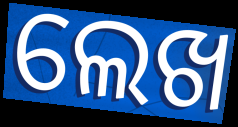
ଲେଖ